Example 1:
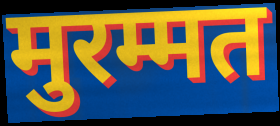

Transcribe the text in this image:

मुरम्मत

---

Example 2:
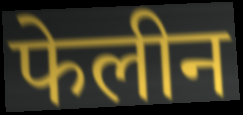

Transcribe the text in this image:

फेलीन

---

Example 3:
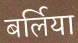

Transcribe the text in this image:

बर्लिया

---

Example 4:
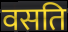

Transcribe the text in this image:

वसति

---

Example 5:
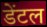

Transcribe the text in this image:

डेंटल